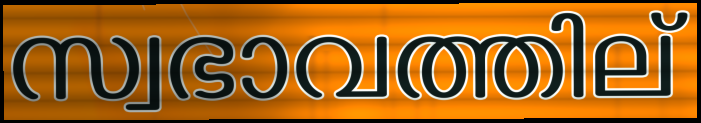
സ്വഭാവത്തില്